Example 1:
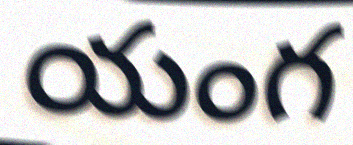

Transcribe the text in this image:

యంగ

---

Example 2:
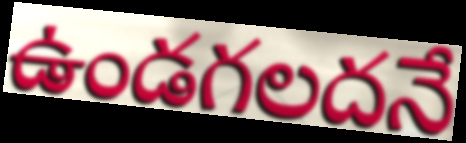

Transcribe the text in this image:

ఉండగలదనే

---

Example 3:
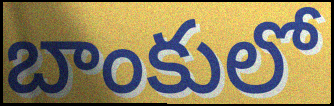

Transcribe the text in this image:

బాంకులో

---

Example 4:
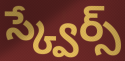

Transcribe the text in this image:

స్క్వేర్స్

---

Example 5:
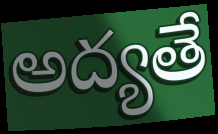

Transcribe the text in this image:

అద్యతే